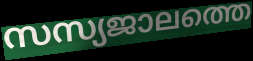
സസ്യജാലത്തെ